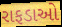
રાફડાઓ